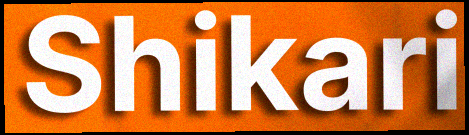
Shikari